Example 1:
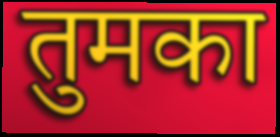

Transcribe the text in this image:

तुमका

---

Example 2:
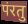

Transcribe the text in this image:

पंरतु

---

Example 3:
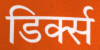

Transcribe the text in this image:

डिर्क्स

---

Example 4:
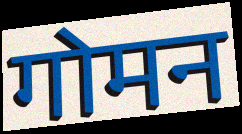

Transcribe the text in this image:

गोमन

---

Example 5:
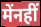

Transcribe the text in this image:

मेंनहीं